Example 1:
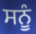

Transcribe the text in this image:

ਸਨੂੰ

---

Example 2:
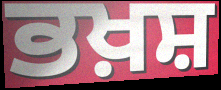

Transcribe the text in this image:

ਭਖ਼ਸ਼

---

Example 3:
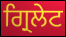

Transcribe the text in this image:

ਗ੍ਰਿਲੇਟ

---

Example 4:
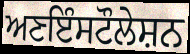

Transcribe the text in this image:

ਅਣਇੰਸਟੌਲੇਸ਼ਨ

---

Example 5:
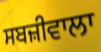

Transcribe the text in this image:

ਸਬਜ਼ੀਵਾਲਾ